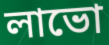
লাভো